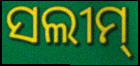
ସଲୀମ୍